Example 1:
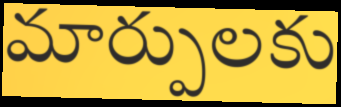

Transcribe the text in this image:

మార్పులకు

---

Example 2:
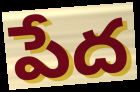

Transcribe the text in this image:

పేద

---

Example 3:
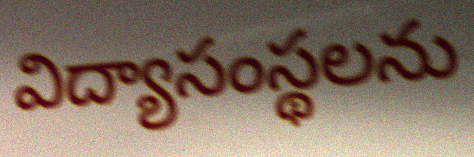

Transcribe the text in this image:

విద్యాసంస్థలను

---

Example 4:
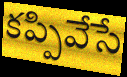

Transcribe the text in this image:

కప్పివేసే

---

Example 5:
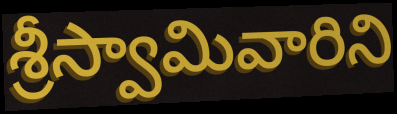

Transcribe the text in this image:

శ్రీస్వామివారిని